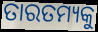
ତାରତମ୍ୟକୁ